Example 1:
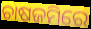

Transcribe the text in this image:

ଚାଷଜମିରେ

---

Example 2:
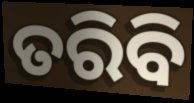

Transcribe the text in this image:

ତରିବି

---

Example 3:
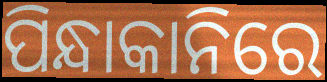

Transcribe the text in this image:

ପିନ୍ଧାକାନିରେ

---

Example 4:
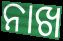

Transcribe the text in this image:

ନାଖ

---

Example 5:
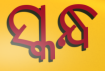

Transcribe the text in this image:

ସ୍କନ୍ଧ